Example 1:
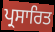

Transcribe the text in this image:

ਪ੍ਰਸਾਰਿਤ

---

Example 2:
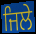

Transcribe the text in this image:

ਜਿਲੇ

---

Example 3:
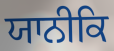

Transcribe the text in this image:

ਯਾਨੀਕਿ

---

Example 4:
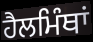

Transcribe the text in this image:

ਹੈਲਮਿੰਥਾਂ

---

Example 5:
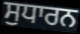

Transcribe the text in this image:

ਸੁਧਾਰਨ